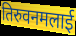
तिरुवनमलाई